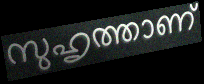
സുഹൃത്താണ്